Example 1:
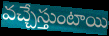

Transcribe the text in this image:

వచ్చేస్తుంటాయి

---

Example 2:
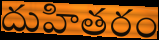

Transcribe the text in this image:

దుహితరం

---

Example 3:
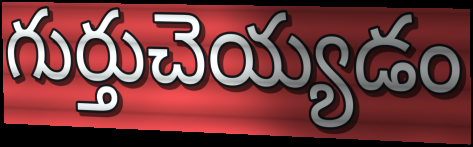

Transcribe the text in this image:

గుర్తుచెయ్యడం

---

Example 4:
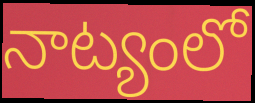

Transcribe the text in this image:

నాట్యంలో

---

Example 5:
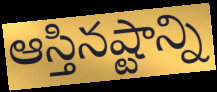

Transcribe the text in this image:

ఆస్తినష్టాన్ని